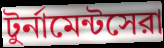
টুর্নামেন্টসেরা